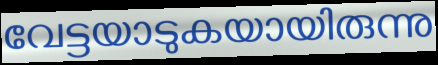
വേട്ടയാടുകയായിരുന്നു